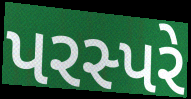
પરસ્પરે